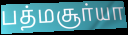
பத்மசூர்யா